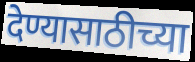
देण्यासाठीच्या